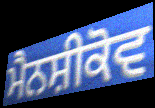
ਮੈਨਸ਼ੀਕੋਵ